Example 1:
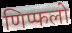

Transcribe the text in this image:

णिप्फलो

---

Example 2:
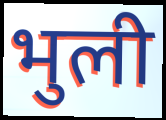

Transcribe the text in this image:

भुली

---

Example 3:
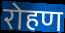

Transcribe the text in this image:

रोहण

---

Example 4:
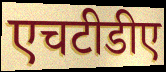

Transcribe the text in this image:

एचटीडीए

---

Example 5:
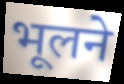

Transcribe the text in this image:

भूलने